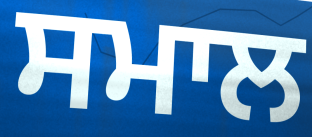
ਸਮਾਲ